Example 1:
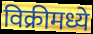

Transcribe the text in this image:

विक्रीमध्ये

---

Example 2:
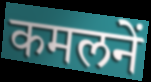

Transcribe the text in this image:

कमलनें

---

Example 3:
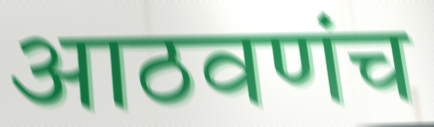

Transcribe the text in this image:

आठवणंच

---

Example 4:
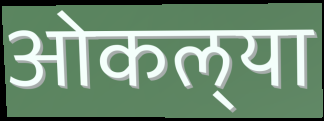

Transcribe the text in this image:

ओकल्या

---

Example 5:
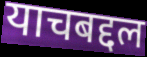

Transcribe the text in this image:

याचबद्दल